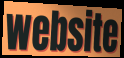
website